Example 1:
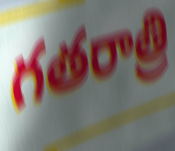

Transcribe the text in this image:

గతరాత్రి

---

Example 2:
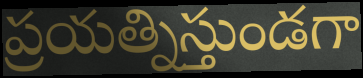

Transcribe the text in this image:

ప్రయత్నిస్తుండగా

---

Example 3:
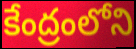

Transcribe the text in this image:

కేంద్రంలోని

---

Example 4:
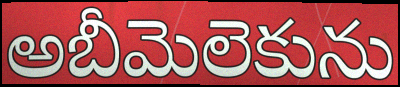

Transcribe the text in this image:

అబీమెలెకును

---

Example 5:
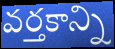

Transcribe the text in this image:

వర్తకాన్ని